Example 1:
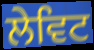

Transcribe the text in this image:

ਲੇਵਿਟ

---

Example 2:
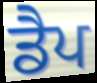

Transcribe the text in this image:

ਡੈਪ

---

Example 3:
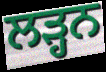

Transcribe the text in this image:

ਲੜ੍ਹਨ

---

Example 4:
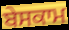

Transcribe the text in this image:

ਬੇਸਕਾਮ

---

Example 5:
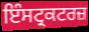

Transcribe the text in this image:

ਇੰਸਟ੍ਰਕਟਰਜ਼